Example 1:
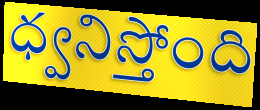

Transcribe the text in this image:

ధ్వనిస్తోంది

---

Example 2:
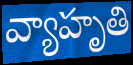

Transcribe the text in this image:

వ్యాహృతి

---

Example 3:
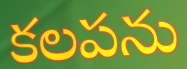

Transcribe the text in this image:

కలపను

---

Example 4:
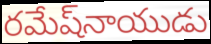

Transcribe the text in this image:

రమేష్‌నాయుడు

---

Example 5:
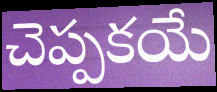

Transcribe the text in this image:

చెప్పకయే